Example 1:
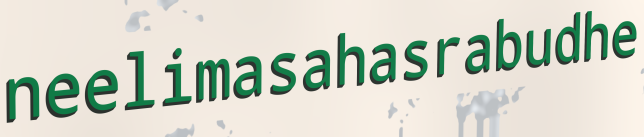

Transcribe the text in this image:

neelimasahasrabudhe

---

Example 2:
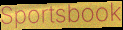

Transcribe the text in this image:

Sportsbook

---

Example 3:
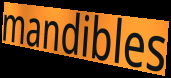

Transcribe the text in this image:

mandibles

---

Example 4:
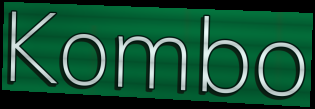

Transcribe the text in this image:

Kombo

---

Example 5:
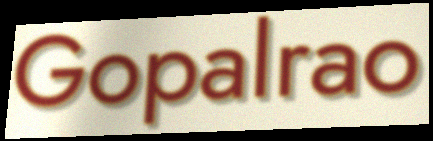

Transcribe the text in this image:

Gopalrao